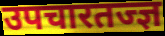
उपचारतज्ज्ञ